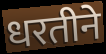
धरतीने